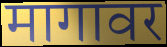
मागावर